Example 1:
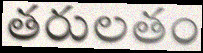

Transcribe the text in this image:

తరులతం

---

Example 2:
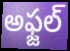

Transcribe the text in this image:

అఫ్జల్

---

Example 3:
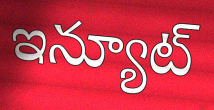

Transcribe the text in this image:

ఇన్యూట్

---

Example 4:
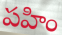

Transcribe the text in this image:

పహిం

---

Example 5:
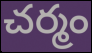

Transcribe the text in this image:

చర్మం